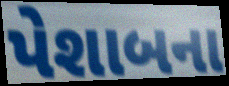
પેશાબના